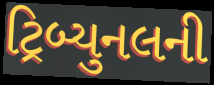
ટ્રિબ્યુનલની